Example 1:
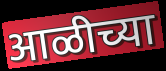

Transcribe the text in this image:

आळीच्या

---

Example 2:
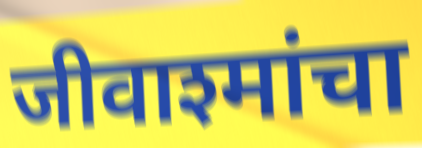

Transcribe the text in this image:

जीवाश्मांचा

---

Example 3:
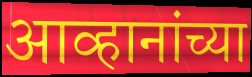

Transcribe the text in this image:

आव्हानांच्या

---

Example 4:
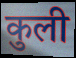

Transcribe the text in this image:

कुली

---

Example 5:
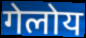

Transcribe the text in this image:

गेलोय